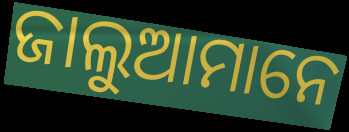
ଜାଲୁଆମାନେ